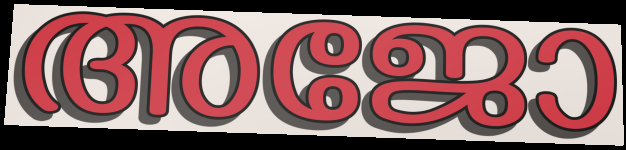
അജോ